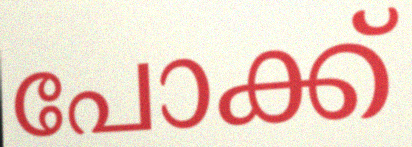
പോക്ക്